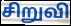
சிறுவி